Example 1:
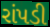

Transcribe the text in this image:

રાંપડી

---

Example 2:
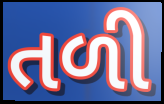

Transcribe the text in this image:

તળી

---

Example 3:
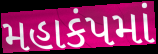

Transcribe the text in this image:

મહાકંપમાં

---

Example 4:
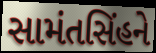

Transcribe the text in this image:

સામંતસિંહને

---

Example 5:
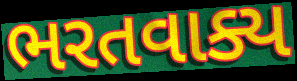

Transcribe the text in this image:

ભરતવાક્ય